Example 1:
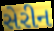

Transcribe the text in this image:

સેરીન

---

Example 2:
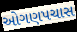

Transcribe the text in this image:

ઓગણપચાસ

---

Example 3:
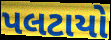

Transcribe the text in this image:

પલટાયો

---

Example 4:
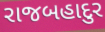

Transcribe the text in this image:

રાજબહાદુર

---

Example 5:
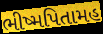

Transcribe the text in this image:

ભીષ્મપિતામહ